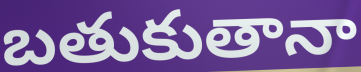
బతుకుతానా